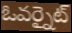
ఓవర్నైట్